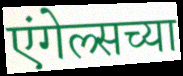
एंगेल्सच्या